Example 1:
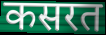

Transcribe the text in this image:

कसरत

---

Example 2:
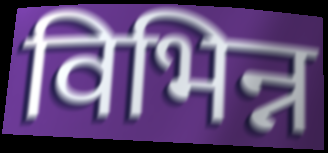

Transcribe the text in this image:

विभिन्न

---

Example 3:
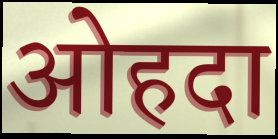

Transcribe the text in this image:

ओहदा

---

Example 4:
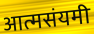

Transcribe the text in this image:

आत्मसंयमी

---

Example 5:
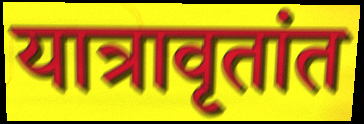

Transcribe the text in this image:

यात्रावृतांत